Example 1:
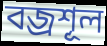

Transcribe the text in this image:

বজ্রশূল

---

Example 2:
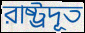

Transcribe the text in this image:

রাষ্ট্রদূত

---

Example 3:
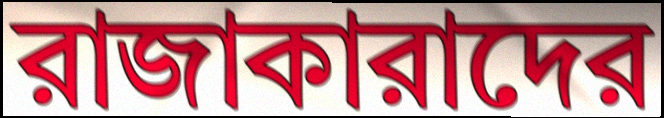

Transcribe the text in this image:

রাজাকারাদের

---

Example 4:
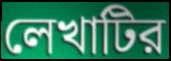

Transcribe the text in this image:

লেখাটির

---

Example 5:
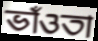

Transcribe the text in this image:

ভাঁওতা